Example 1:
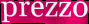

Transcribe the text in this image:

prezzo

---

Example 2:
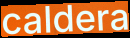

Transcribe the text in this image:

caldera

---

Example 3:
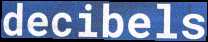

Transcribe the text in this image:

decibels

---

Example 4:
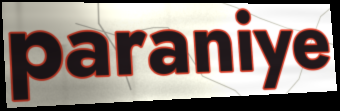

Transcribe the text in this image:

paraniye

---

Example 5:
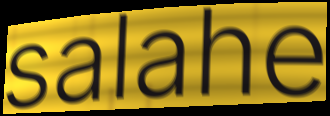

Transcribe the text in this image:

salahe